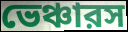
ভেঞ্চারস